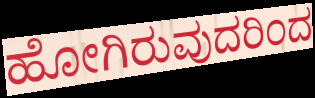
ಹೋಗಿರುವುದರಿಂದ